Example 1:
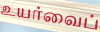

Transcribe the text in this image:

உயர்வைப்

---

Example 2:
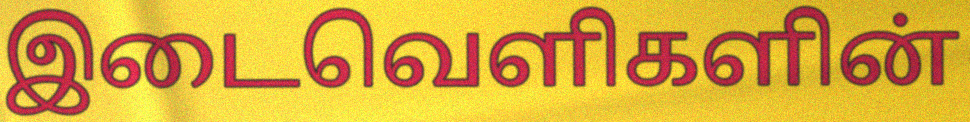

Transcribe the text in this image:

இடைவெளிகளின்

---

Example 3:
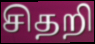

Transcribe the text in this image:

சிதறி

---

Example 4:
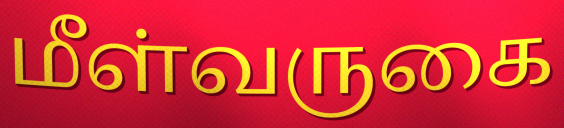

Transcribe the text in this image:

மீள்வருகை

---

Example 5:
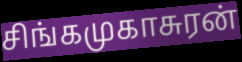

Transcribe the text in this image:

சிங்கமுகாசுரன்